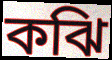
কঝি